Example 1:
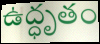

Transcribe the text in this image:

ఉద్ధృతం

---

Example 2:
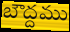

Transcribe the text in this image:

బౌద్దము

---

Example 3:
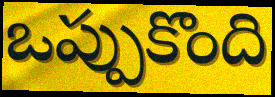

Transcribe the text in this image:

ఒప్పుకొంది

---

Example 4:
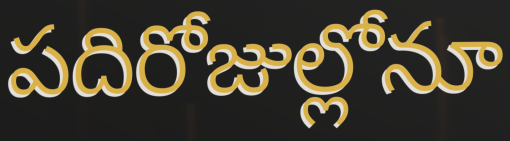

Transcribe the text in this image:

పదిరోజుల్లోనూ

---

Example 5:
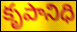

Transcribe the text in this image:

కృపానిధి